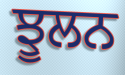
ਝੂਲਨ